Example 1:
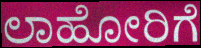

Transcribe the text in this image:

ಲಾಹೋರಿಗೆ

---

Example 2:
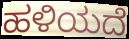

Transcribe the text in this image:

ಹಳಿಯದೆ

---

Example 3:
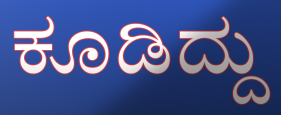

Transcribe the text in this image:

ಕೂಡಿದ್ದು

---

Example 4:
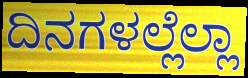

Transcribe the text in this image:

ದಿನಗಳಲ್ಲೆಲ್ಲಾ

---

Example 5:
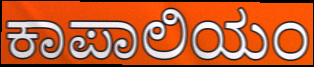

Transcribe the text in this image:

ಕಾಪಾಲಿಯಂ